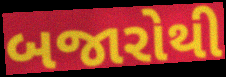
બજારોથી